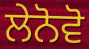
ਲੇਨੋਵੋ